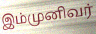
இம்முனிவர்